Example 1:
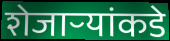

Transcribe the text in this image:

शेजाऱ्यांकडे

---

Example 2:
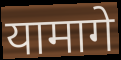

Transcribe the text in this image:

यामागे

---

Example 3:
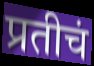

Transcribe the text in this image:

प्रतीचं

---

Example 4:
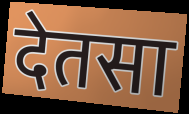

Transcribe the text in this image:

देतसा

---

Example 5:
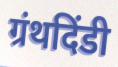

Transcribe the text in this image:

ग्रंथदिंडी